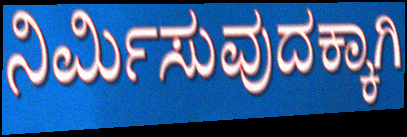
ನಿರ್ಮಿಸುವುದಕ್ಕಾಗಿ